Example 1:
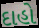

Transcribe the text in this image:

દાહો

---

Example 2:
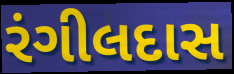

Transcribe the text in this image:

રંગીલદાસ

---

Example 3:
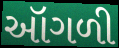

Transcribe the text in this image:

ઑગળી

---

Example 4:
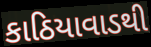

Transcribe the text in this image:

કાઠિયાવાડથી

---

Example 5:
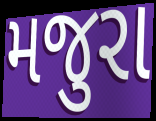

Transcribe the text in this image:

મજુરા